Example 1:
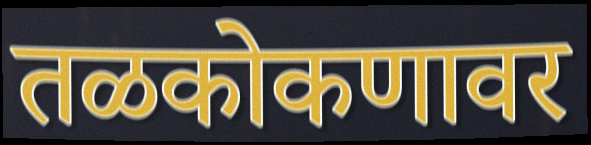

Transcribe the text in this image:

तळकोकणावर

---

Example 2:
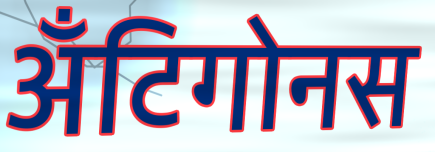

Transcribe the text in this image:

अँटिगोनस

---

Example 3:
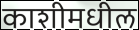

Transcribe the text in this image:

काशीमधील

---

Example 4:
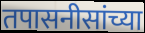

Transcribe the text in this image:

तपासनीसांच्या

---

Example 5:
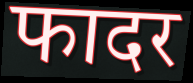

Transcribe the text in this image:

फादर